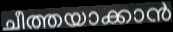
ചീത്തയാക്കാൻ